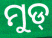
ମୁଡ୍